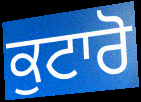
ਕੁਟਾਰੋ